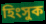
হিংসুক